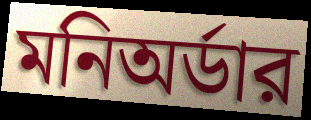
মনিঅর্ডার